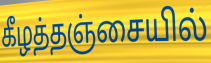
கீழத்தஞ்சையில்